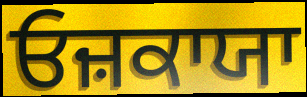
ਓਜ਼ਕਾਯਾ